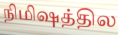
நிமிஷத்தில